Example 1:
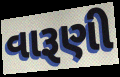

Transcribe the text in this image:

વારૂણી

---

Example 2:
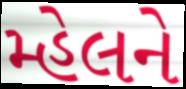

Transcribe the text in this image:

મ્હેલને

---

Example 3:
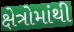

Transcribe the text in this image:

ક્ષેત્રોમાંથી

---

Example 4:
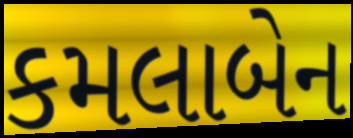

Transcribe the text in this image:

કમલાબેન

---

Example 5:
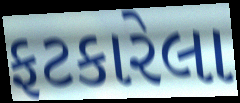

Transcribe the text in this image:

ફટકારેલા